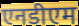
एनडीएम